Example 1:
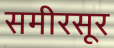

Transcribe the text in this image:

समीरसूर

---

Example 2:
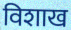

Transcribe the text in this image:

विशाख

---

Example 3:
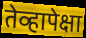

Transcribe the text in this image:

तेव्हापेक्षा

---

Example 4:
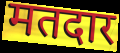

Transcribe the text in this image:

मतदार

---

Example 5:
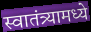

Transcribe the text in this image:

स्वातंत्र्यामध्ये